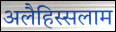
अलैहिस्सलाम